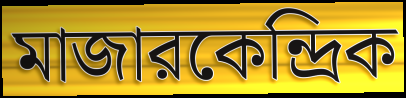
মাজারকেন্দ্রিক